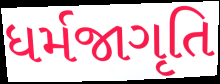
ધર્મજાગૃતિ